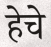
हेचे